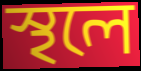
স্থলে